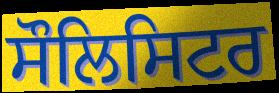
ਸੌਲਿਸਿਟਰ